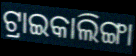
ଟ୍ରାଇକାଲିଙ୍ଗା